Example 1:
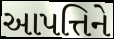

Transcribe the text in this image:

આપત્તિને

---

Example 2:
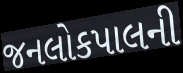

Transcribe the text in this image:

જનલોકપાલની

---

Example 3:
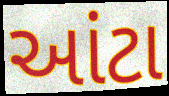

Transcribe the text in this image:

આંટા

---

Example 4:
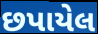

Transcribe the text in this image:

છપાયેલ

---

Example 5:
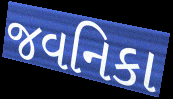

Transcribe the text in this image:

જવનિકા